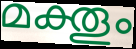
മക്തൂം